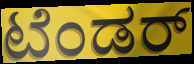
ಟೆಂಡರ್